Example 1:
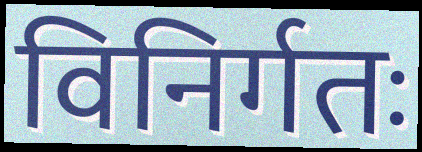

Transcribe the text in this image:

विनिर्गतः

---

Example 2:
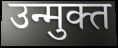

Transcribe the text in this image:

उन्मुक्त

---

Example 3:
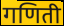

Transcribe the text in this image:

गणिती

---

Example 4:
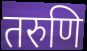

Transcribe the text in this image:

तरुणि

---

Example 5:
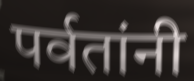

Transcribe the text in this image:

पर्वतांनी